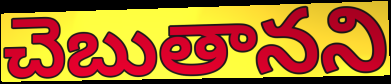
చెబుతానని